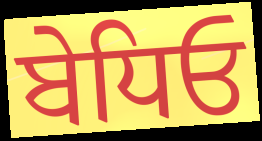
ਬੇਧਿਓ